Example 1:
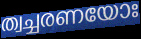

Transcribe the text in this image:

ത്വച്ചരണയോഃ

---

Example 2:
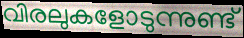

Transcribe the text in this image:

വിരലുകളോടുന്നുണ്ട്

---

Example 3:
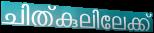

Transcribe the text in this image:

ചിത്കുലിലേക്ക്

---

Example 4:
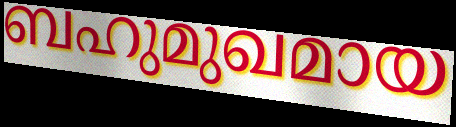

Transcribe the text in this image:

ബഹുമുഖമായ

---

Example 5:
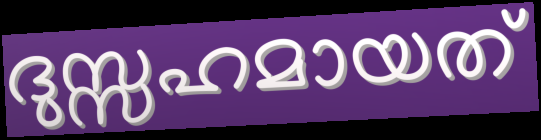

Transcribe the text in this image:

ദുസ്സഹമായത്